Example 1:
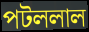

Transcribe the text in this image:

পটললাল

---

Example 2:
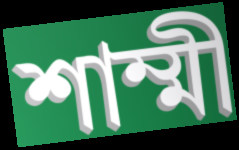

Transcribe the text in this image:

শাম্মী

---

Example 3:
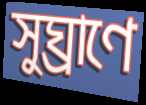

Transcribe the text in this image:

সুঘ্রাণে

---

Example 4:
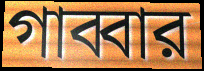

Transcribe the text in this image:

গাব্বার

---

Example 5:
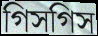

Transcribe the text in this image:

গিসগিস